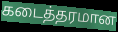
கடைத்தரமான